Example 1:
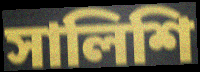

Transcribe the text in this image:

সালিশি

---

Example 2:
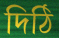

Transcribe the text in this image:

দিঠি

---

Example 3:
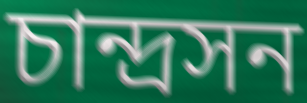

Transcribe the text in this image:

চান্দ্রসন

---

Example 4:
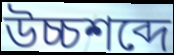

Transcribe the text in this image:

উচ্চশব্দে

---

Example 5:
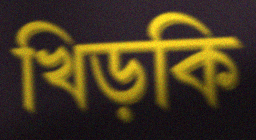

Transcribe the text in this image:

খিড়কি